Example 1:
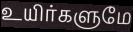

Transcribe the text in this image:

உயிர்களுமே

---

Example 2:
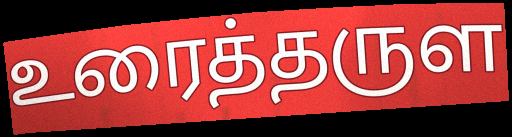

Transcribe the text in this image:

உரைத்தருள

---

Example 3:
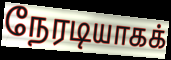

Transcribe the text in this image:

நேரடியாகக்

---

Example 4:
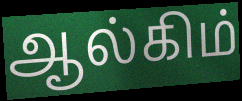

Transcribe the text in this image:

ஆல்கிம்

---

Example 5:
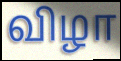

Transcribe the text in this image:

விழா